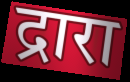
द्रारा